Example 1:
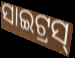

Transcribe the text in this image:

ସାଇଟ୍ରସ୍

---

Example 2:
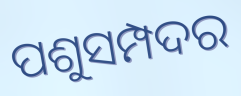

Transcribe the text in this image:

ପଶୁସମ୍ପଦର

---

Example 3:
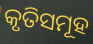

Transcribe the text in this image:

କୃତିସମୂହ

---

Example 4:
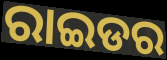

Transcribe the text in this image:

ରାଇଡର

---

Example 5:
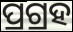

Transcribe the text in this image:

ପ୍ରଗ୍ରହ